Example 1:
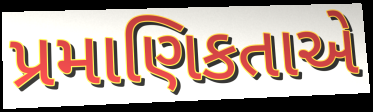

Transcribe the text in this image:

પ્રમાણિકતાએ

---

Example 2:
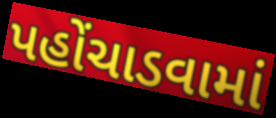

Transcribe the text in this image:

પહોંચાડવામાં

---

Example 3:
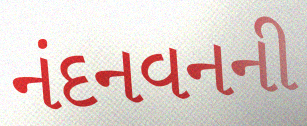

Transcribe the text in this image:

નંદનવનની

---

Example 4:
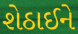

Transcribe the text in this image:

શેઠાઈને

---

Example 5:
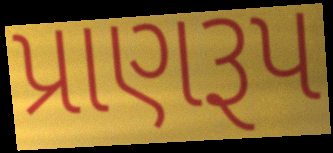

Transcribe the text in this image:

પ્રાણરૂપ